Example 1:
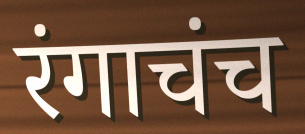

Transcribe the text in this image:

रंगाचंच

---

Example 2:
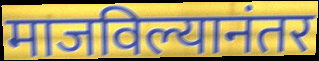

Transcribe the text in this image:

माजविल्यानंतर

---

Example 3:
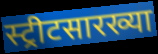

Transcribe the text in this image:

स्ट्रीटसारख्या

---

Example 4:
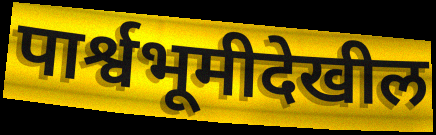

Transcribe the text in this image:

पार्श्वभूमीदेखील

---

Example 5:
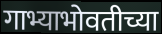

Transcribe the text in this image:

गाभ्याभोवतीच्या